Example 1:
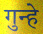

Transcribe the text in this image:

गुन्हे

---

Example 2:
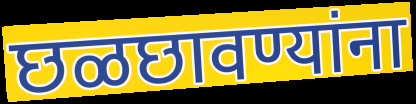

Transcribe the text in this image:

छळछावण्यांना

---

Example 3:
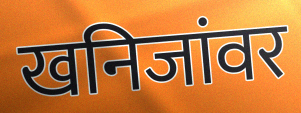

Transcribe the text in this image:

खनिजांवर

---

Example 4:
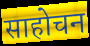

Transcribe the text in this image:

साहोचन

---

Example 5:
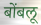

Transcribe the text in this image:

बोंबलू